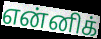
என்னிக்